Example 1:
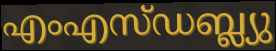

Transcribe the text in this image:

എംഎസ്ഡബ്ല്യു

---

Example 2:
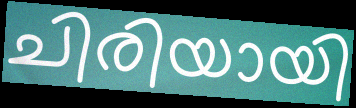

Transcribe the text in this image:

ചിരിയായി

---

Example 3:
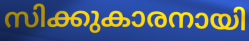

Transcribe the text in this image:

സിക്കുകാരനായി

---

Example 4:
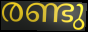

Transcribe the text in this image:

രണ്ടു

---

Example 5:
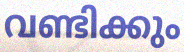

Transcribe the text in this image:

വണ്ടിക്കും